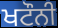
ਖਟੌਨੀ